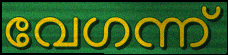
വേഗന്ന്